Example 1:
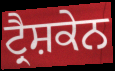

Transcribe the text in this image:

ਟ੍ਰੈਸ਼ਕੇਨ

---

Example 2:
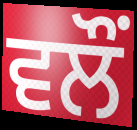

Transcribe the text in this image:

ਵਲੌਂ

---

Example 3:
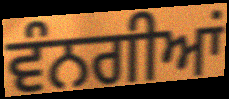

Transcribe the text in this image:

ਵੰਨਗੀਆਂ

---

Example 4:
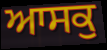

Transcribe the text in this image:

ਆਸਕੁ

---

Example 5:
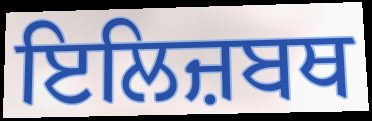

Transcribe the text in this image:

ਇਲਿਜ਼ਬਥ